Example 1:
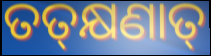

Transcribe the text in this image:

ତତ୍‍କ୍ଷଣାତ୍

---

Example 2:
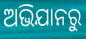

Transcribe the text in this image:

ଅଭିଯାନରୁ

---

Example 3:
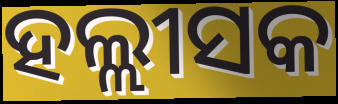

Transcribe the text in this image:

ହଲ୍ଲୀସକ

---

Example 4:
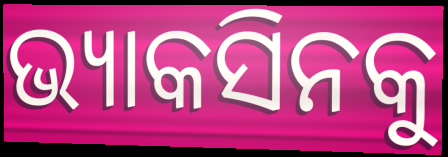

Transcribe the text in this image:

ଭ୍ୟାକସିନକୁ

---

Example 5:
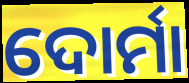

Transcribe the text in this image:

ଦୋର୍ମା